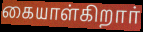
கையாள்கிறார்